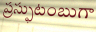
ప్రస్ఫుటంబుగా